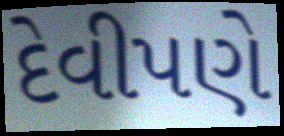
દેવીપણે